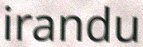
irandu